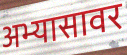
अभ्यासावर